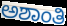
ಅಶಾಂತಿ